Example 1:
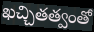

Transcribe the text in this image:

ఖచ్చితత్వంతో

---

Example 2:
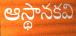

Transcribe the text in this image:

ఆస్థానకవి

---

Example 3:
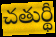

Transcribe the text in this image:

చతుర్థీ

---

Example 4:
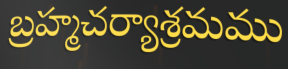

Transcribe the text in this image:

బ్రహ్మచర్యాశ్రమము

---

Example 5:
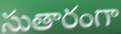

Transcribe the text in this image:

సుతారంగా